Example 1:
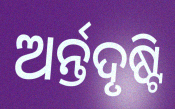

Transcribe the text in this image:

ଅର୍ନ୍ତଦୃଷ୍ଟି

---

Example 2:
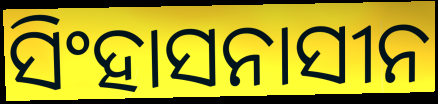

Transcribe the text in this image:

ସିଂହାସନାସୀନ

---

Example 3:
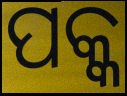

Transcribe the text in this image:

ପକ୍କ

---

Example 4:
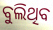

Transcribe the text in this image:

ବୁଲିଥିବ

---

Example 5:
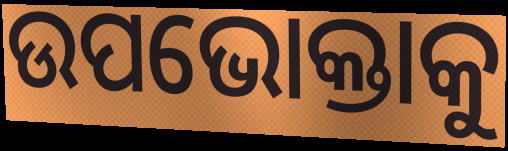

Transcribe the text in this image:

ଉପଭୋକ୍ତାକୁ